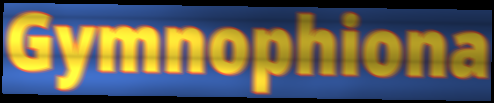
Gymnophiona